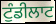
ਟੁੰਡੀਲਾਟ